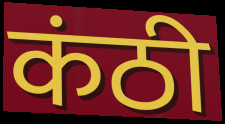
कंठी